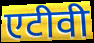
एटीवी